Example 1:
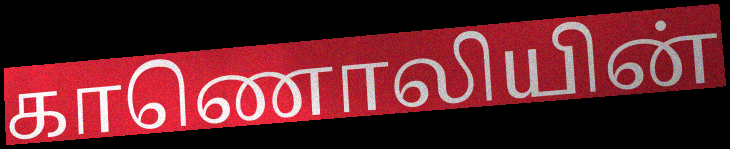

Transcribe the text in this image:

காணொலியின்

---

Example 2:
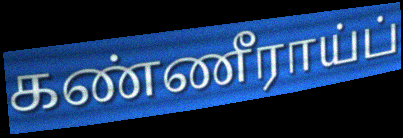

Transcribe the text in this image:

கண்ணீராய்ப்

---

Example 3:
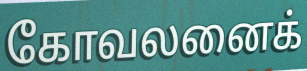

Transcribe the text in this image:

கோவலனைக்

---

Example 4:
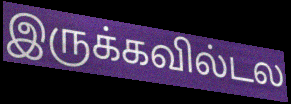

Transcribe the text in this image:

இருக்கவில்டல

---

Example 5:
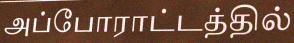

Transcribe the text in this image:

அப்போராட்டத்தில்